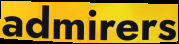
admirers